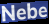
Nebe